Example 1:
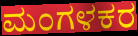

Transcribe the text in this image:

ಮಂಗಳಕರ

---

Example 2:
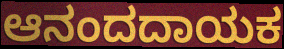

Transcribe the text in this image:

ಆನಂದದಾಯಕ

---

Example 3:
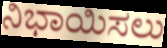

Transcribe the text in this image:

ನಿಭಾಯಿಸಲು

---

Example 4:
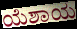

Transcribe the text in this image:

ಯೆಶಾಯ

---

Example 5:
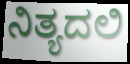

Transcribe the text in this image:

ನಿತ್ಯದಲಿ